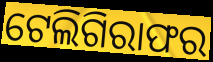
ଟେଲିଗିରାଫର